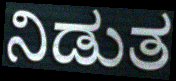
ನಿಡುತ